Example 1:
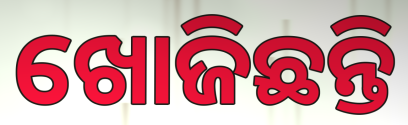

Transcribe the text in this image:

ଖୋଜିଛନ୍ତି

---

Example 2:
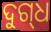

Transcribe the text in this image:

ଦୁଗ୍‌ଧ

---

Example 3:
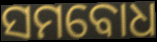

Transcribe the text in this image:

ସମବୋଧ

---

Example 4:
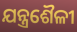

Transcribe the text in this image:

ଯନ୍ତ୍ରଶୈଳୀ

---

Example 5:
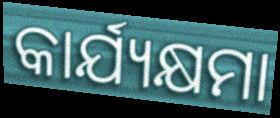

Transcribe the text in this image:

କାର୍ଯ୍ୟକ୍ଷମା